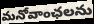
మనోవాంఛలను